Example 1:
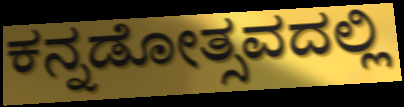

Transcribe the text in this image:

ಕನ್ನಡೋತ್ಸವದಲ್ಲಿ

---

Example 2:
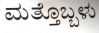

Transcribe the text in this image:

ಮತ್ತೊಬ್ಬಳು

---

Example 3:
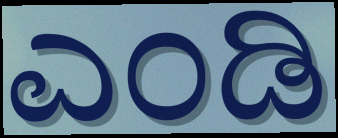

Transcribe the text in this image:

ಎಂಡಿ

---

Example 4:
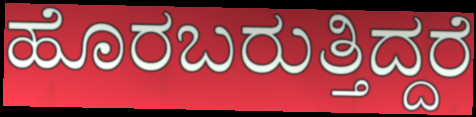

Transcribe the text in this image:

ಹೊರಬರುತ್ತಿದ್ದರೆ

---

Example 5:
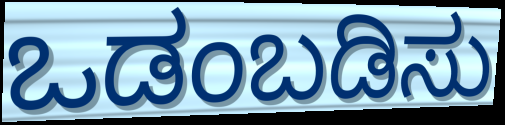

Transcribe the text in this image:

ಒಡಂಬಡಿಸು